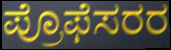
ಪ್ರೊಫೆಸರರ